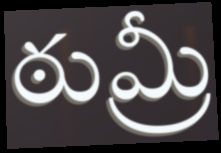
ఠుమ్రీ